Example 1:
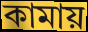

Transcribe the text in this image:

কামায়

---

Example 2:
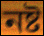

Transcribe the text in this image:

নষ্ট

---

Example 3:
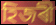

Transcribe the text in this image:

হিজৰী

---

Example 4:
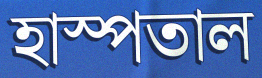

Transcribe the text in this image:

হাস্পতাল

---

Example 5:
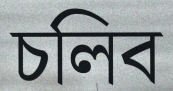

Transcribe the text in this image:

চলিব